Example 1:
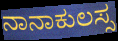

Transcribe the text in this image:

ನಾನಾಕುಲಸ್ಸ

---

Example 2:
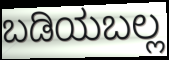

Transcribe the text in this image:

ಬಡಿಯಬಲ್ಲ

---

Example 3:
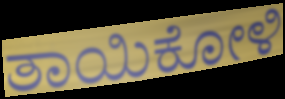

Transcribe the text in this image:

ತಾಯಿಕೋಳಿ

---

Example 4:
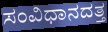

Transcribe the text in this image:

ಸಂವಿಧಾನದತ್ತ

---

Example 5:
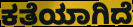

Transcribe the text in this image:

ಕತೆಯಾಗಿದೆ